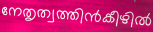
നേതൃത്വത്തിൻകീഴിൽ